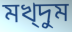
মখ্দুম